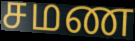
சமண